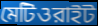
মেটিওরাইট